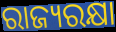
ରାଜ୍ୟରକ୍ଷା